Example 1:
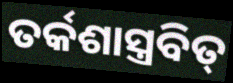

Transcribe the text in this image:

ତର୍କଶାସ୍ତ୍ରବିତ୍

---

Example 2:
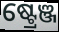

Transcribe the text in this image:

ଷ୍ଟ୍ରେଞ୍ଜ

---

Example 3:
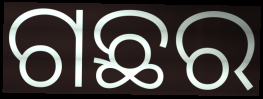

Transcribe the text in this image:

ଗଛର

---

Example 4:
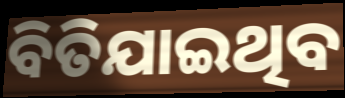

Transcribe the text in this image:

ବିତିଯାଇଥିବ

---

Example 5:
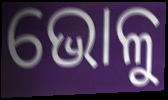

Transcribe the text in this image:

ଭୋଳୁ